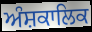
ਅੰਸ਼ਕਾਲਿਕ